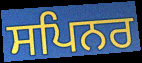
ਸਪਿਨਰ